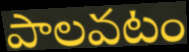
పాలవటం